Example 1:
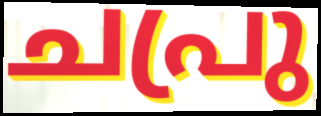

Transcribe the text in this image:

ചപ്രു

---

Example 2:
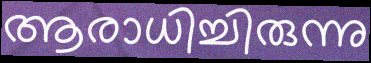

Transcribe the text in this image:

ആരാധിച്ചിരുന്നു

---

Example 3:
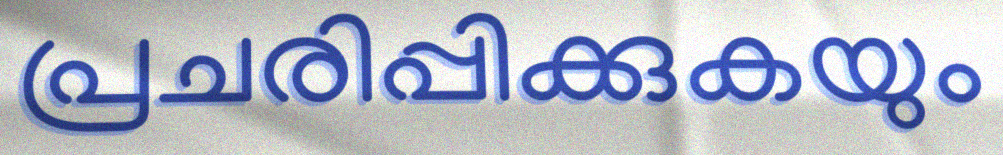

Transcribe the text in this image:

പ്രചരിപ്പിക്കുകയും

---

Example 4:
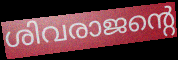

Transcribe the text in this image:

ശിവരാജന്റെ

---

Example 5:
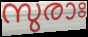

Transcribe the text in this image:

സുരാഃ